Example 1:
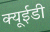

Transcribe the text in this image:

क्यूईडी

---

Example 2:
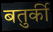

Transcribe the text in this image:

बतुर्की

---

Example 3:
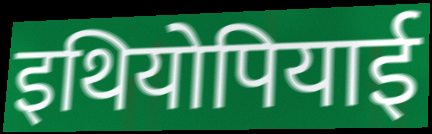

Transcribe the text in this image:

इथियोपियाई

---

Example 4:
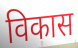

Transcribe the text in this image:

विकास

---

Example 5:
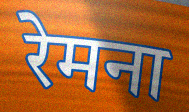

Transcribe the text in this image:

रेमना